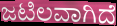
ಜಟಿಲವಾಗಿದೆ